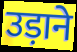
उड़ाने